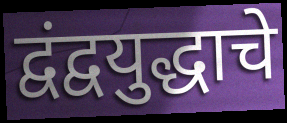
द्वंद्वयुद्धाचे